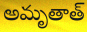
అమృతాత్